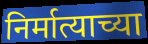
निर्मात्याच्या